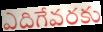
ఎదిగేవరకు